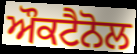
ਔਕਟੈਨੋਲ